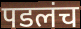
पडलंच